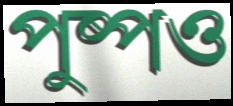
পুষ্পও